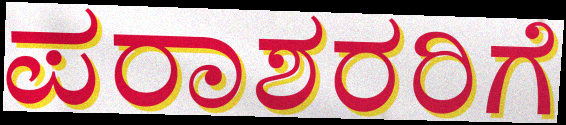
ಪರಾಶರರಿಗೆ